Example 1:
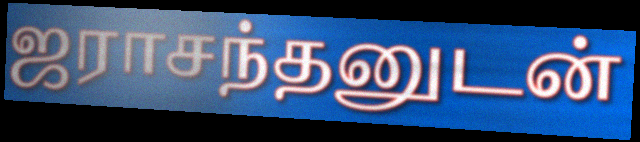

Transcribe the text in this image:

ஜராசந்தனுடன்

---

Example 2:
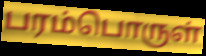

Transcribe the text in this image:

பரம்பொருள்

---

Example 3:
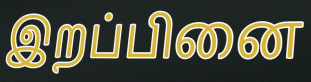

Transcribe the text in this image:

இறப்பினை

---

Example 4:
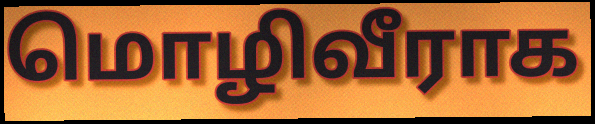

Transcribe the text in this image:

மொழிவீராக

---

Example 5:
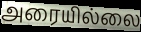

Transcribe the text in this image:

அரையில்லை